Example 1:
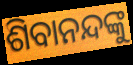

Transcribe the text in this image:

ଶିବାନନ୍ଦଙ୍କୁ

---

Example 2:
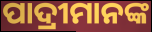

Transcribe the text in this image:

ପାଦ୍ରୀମାନଙ୍କ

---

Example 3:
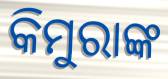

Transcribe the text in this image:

କିମୁରାଙ୍କ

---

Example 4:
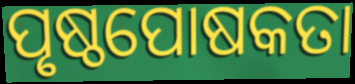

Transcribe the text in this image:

ପୃଷ୍ଠପୋଷକତା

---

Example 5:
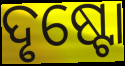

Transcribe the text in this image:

ଦୃଷ୍ଟୋ